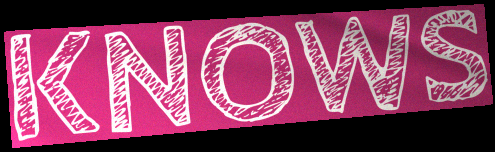
KNOWS